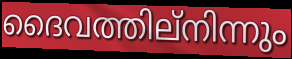
ദൈവത്തില്നിന്നും